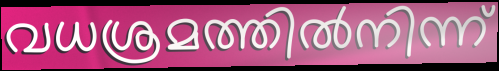
വധശ്രമത്തിൽനിന്ന്